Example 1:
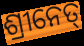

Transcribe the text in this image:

ଶ୍ରୀନେତ୍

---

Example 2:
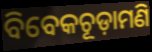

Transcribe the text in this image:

ବିବେକଚୂଡ଼ାମଣି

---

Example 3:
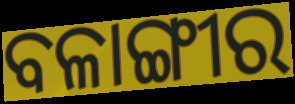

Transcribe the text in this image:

ବଳାଙ୍ଗୀର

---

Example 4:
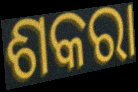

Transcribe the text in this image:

ଶକରା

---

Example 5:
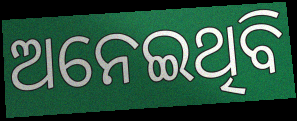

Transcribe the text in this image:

ଅନେଇଥିବି